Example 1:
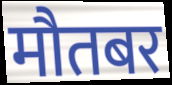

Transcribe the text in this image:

मौतबर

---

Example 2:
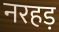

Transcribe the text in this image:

नरहड़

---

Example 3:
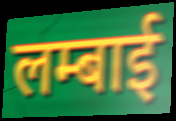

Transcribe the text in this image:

लम्बाई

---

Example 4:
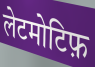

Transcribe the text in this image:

लेटमोटिफ़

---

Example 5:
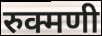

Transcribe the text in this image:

रुक्मणी